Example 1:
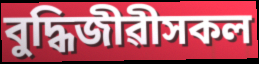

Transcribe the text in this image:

বুদ্ধিজীৱীসকল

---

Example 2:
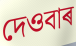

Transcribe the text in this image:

দেওবাৰ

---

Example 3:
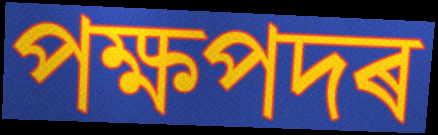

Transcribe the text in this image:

পক্ষপদৰ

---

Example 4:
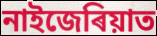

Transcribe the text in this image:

নাইজেৰিয়াত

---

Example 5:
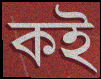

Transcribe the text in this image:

কই